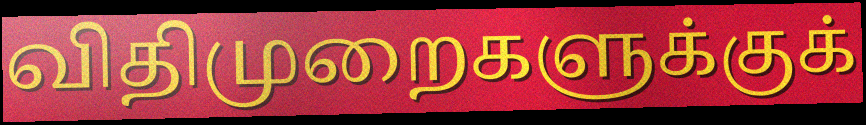
விதிமுறைகளுக்குக்